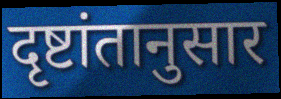
दृष्टांतानुसार